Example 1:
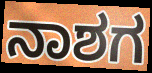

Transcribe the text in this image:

ನಾಶಗ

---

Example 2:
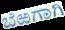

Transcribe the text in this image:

ಬೆಱಗಾಗಿ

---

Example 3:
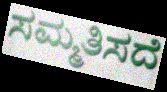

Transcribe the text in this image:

ಸಮ್ಮತಿಸದೆ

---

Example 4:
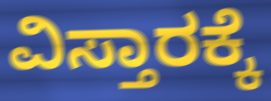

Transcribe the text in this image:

ವಿಸ್ತಾರಕ್ಕೆ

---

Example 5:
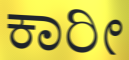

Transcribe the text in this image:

ಕಾರೀ